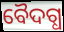
ବୈଦଗ୍ଧ